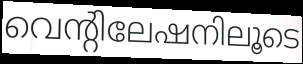
വെന്റിലേഷനിലൂടെ